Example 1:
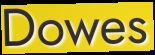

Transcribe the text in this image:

Dowes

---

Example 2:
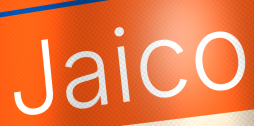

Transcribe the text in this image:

Jaico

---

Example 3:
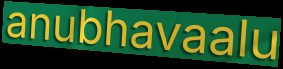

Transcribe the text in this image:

anubhavaalu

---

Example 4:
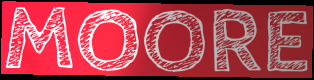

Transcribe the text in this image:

MOORE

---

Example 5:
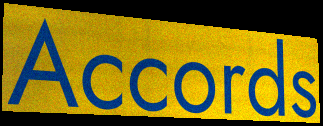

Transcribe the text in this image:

Accords